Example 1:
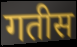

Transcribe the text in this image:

गतीस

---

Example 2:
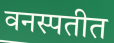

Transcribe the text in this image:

वनस्पतीत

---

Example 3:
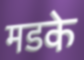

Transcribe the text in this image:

मडके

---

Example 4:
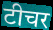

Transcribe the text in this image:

टीचर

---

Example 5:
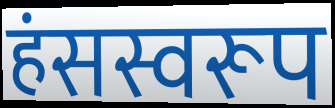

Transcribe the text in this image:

हंसस्वरूप